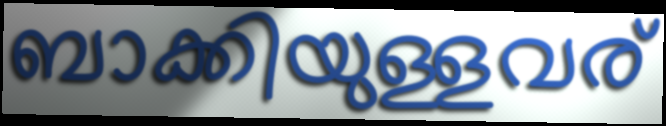
ബാക്കിയുള്ളവര്